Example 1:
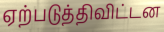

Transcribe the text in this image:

ஏற்படுத்திவிட்டன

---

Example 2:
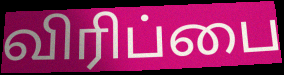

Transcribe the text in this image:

விரிப்பை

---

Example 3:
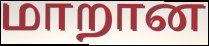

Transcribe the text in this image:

மாறான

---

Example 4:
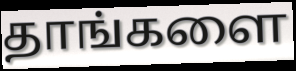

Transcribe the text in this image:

தாங்களை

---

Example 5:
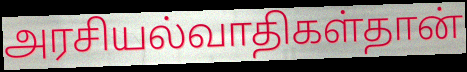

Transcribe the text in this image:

அரசியல்வாதிகள்தான்